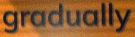
gradually